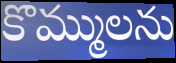
కొమ్ములను